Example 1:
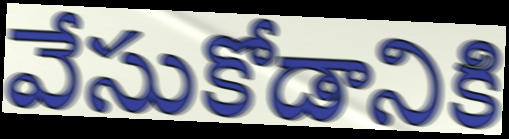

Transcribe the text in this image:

వేసుకోడానికి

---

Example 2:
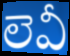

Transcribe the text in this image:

లెవీ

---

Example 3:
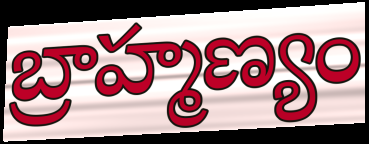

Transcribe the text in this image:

బ్రాహ్మణ్యం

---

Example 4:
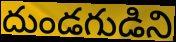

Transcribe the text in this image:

దుండగుడిని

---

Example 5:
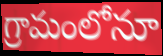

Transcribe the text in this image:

గ్రామంలోనూ